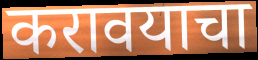
करावयाचा